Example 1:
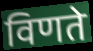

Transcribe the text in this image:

विणते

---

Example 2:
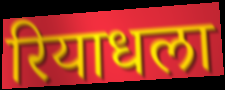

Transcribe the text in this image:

रियाधला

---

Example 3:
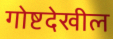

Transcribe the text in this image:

गोष्टदेखील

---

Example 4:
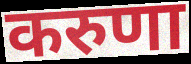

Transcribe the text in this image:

करुणा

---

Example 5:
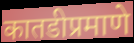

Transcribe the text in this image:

कातडीप्रमाणे